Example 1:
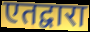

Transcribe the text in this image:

एतद्वारा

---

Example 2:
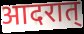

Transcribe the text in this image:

आदरात्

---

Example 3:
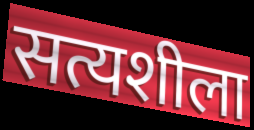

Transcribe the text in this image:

सत्यशीला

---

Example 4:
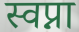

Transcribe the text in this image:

स्वप्ना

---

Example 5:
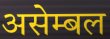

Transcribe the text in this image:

असेम्बल